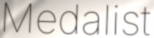
Medalist